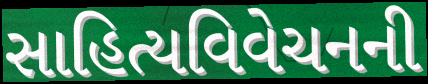
સાહિત્યવિવેચનની